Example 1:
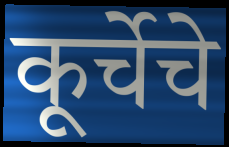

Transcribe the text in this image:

कूर्चेचे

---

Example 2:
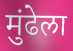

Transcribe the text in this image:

मुंढेला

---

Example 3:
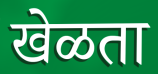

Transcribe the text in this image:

खेळता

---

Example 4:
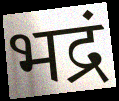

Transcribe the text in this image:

भद्रं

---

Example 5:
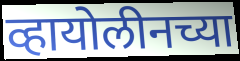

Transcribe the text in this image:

व्हायोलीनच्या